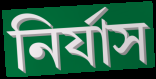
নির্যাস